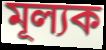
মূল্যক